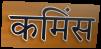
कमिंस